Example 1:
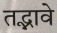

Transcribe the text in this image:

तद्भावे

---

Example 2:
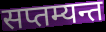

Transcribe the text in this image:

सप्तम्यन्त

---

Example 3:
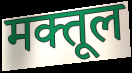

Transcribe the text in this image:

मक्तूल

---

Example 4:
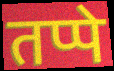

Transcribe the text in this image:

तप्पे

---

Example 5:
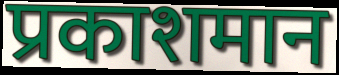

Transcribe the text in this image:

प्रकाशमान